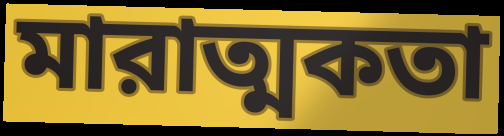
মারাত্মকতা